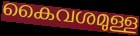
കൈവശമുള്ള